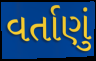
વર્તાણું